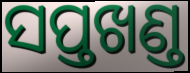
ସପ୍ତଖଣ୍ଡ